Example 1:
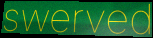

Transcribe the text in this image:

swerved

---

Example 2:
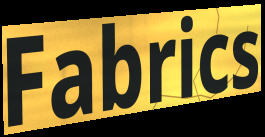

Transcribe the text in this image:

Fabrics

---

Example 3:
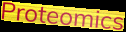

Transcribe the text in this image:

Proteomics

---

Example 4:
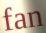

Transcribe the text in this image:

fan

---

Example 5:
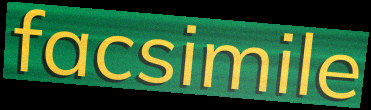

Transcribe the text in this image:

facsimile